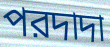
পরদাদা